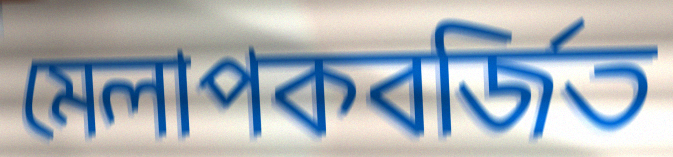
মেলাপকবর্জিত